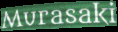
Murasaki